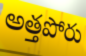
అత్తపోరు